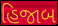
હિજાબ